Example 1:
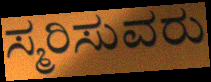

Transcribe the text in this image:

ಸ್ಮರಿಸುವರು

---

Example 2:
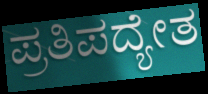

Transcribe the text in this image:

ಪ್ರತಿಪದ್ಯೇತ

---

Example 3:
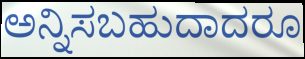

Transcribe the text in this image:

ಅನ್ನಿಸಬಹುದಾದರೂ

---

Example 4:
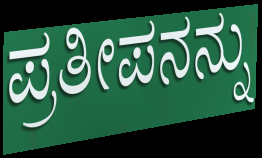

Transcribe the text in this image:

ಪ್ರತೀಪನನ್ನು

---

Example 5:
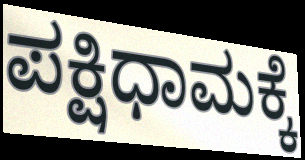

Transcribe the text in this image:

ಪಕ್ಷಿಧಾಮಕ್ಕೆ